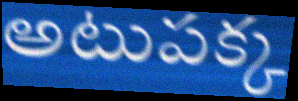
అటుపక్క